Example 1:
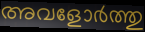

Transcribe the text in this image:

അവളോർത്തു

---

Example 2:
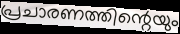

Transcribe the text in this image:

പ്രചാരണത്തിന്റെയും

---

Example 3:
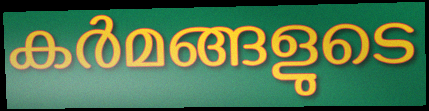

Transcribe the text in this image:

കർമങ്ങളുടെ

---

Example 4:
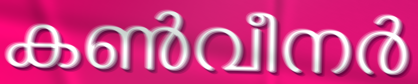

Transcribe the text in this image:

കൺവീനർ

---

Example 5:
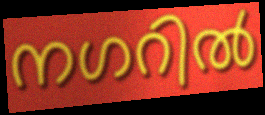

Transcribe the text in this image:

നഗറിൽ